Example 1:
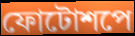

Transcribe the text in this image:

ফোটোশপে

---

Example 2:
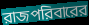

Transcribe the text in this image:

রাজপরিবারের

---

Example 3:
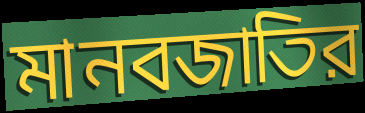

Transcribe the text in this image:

মানবজাতির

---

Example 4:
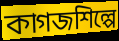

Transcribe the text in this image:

কাগজশিল্পে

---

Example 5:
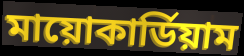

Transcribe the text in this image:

মায়োকার্ডিয়াম